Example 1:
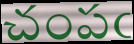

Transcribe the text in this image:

చంపఁ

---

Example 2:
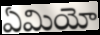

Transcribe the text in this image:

ఏమియో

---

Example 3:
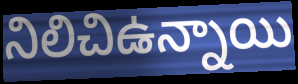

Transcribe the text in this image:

నిలిచిఉన్నాయి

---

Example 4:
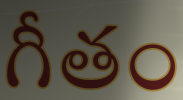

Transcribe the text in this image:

గీతం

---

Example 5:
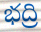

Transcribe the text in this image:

భద్రి